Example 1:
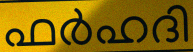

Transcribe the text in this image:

ഫർഹദി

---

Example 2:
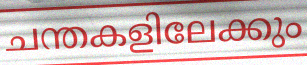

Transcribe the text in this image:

ചന്തകളിലേക്കും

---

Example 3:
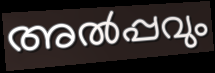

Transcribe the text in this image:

അൽപ്പവും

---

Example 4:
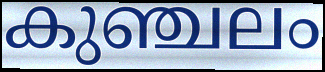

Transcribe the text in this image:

കുഞ്ചലം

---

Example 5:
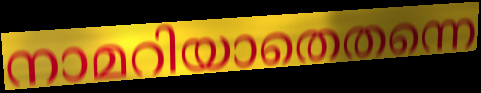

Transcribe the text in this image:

നാമറിയാതെതന്നെ